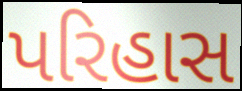
પરિહાસ